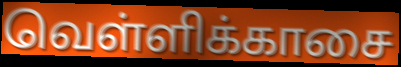
வெள்ளிக்காசை